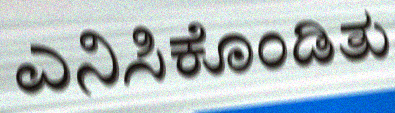
ಎನಿಸಿಕೊಂಡಿತು